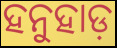
ହନୁହାଡ଼